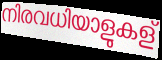
നിരവധിയാളുകള്